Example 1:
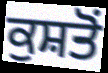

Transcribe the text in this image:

ਕੁਸ਼ਤੋਂ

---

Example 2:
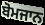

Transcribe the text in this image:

ਬੋਮਜਾਨ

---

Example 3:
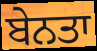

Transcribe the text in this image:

ਬੇਨਤਾ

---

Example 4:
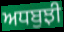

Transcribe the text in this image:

ਅਧਬੁਝੀ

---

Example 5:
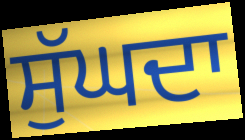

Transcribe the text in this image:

ਸੁੱਘਦਾ